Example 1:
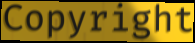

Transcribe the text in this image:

Copyright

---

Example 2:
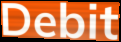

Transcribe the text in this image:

Debit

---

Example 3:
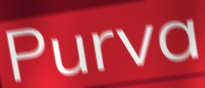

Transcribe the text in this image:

Purva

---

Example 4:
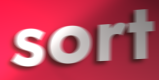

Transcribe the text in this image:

sort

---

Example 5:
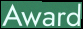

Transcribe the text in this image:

Award